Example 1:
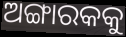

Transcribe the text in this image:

ଅଙ୍ଗାରକକୁ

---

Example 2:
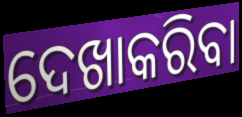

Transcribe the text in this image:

ଦେଖାକରିବା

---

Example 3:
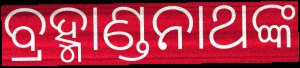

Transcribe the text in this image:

ବ୍ରହ୍ମାଣ୍ଡନାଥଙ୍କ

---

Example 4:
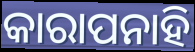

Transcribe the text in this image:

କାରାପନାହି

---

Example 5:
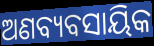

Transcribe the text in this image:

ଅଣବ୍ୟବସାୟିକ